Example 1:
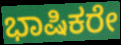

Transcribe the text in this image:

ಭಾಷಿಕರೇ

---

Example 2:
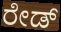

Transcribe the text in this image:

ರೇಡ್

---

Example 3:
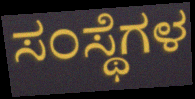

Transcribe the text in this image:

ಸಂಸ್ಥೆಗಳ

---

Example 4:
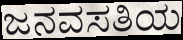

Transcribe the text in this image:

ಜನವಸತಿಯ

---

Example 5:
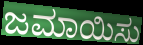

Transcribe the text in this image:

ಜಮಾಯಿಸು